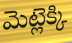
మెట్లెక్కి